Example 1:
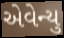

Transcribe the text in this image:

એવેન્યુ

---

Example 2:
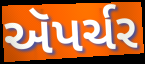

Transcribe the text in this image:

ઍપર્ચર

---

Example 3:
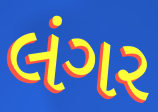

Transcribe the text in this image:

લંગર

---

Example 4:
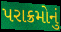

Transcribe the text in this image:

પરાક્રમોનું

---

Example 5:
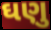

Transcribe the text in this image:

ઘણુ